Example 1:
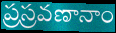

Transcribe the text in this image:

ప్రస్రవణానాం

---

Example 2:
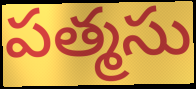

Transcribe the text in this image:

పత్మసు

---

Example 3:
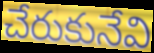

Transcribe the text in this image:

చేరుకునేవి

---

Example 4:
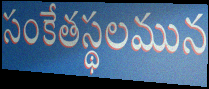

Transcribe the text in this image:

సంకేతస్థలమున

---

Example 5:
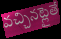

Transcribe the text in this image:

వచ్చినట్లైతే